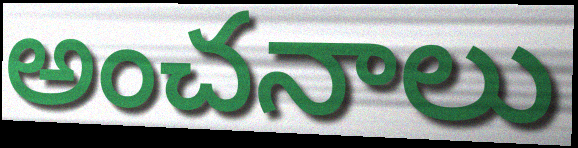
అంచనాలు